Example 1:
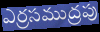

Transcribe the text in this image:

ఎర్రసముద్రపు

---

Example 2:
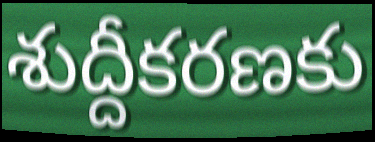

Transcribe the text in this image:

శుద్దీకరణకు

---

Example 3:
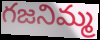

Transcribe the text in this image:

గజనిమ్మ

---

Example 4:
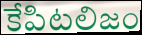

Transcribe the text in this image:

కేపిటలిజం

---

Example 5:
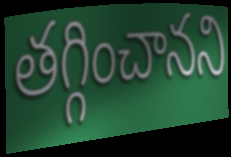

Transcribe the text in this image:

తగ్గించానని